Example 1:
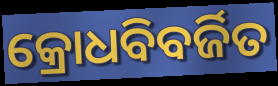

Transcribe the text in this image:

କ୍ରୋଧବିବର୍ଜିତ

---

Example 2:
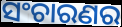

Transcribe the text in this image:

ସଂଚାରଣର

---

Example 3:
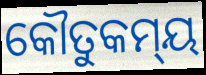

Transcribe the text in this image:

କୌତୁକମ୍‍ୟ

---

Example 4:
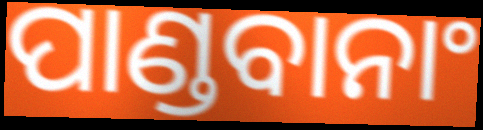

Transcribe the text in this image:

ପାଣ୍ଡବାନାଂ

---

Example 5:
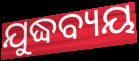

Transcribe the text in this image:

ଯୁଦ୍ଧବ୍ୟୟ